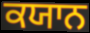
ਕਯਾਨ